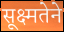
सूक्ष्मतेने